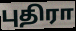
புதிரா